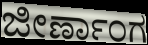
ಜೀರ್ಣಾಂಗ